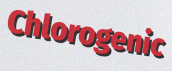
Chlorogenic